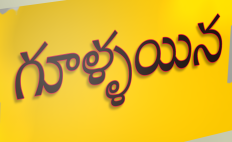
గూళ్ళయిన